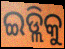
ଇଡ୍ଲିକୁ